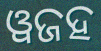
ୱଜହ